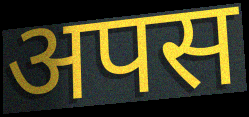
अपस